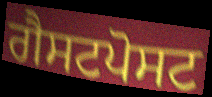
ਗੈਸਟਪੋਸਟ